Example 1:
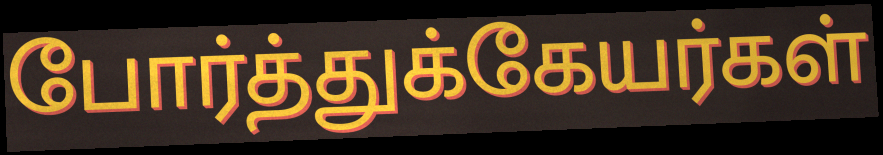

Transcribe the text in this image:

போர்த்துக்கேயர்கள்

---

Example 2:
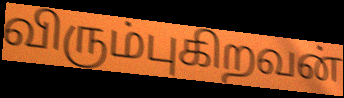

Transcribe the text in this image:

விரும்புகிறவன்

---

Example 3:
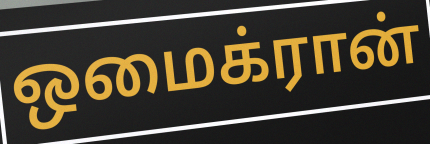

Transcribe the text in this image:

ஒமைக்ரான்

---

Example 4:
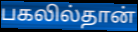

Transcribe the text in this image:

பகலில்தான்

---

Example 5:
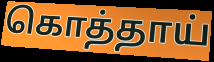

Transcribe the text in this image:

கொத்தாய்